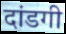
दांडगी